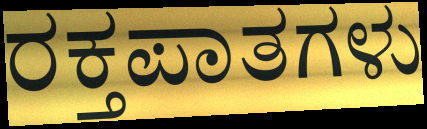
ರಕ್ತಪಾತಗಳು